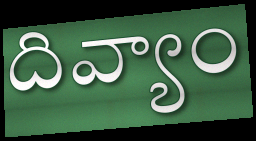
దివ్యాం